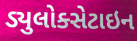
ડ્યુલોક્સેટાઇન